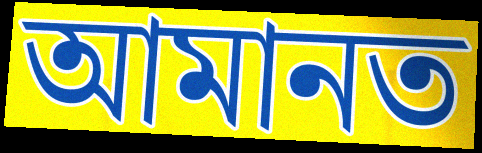
আমানত